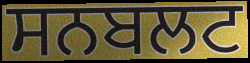
ਸਨਬਲਟ